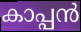
കാപ്പൻ